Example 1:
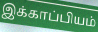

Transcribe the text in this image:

இக்காப்பியம்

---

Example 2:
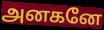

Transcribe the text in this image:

அனகனே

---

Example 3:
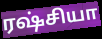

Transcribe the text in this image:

ரஷ்சியா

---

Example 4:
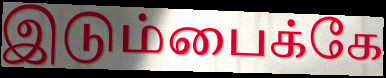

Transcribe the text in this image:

இடும்பைக்கே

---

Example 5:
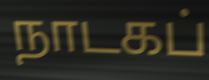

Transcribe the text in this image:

நாடகப்